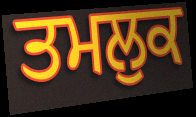
ਤਮਲੁਕ